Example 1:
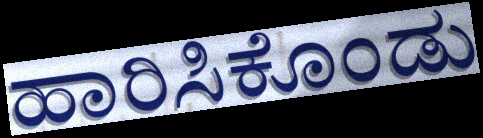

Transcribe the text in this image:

ಹಾರಿಸಿಕೊಂಡು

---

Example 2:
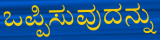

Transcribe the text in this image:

ಒಪ್ಪಿಸುವುದನ್ನು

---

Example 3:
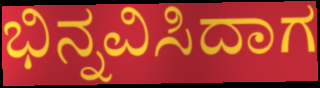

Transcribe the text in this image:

ಭಿನ್ನವಿಸಿದಾಗ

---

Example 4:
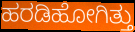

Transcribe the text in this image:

ಹರಡಿಹೋಗಿತ್ತು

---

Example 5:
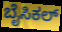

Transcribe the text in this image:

ಬೈಸಿಕಲ್